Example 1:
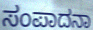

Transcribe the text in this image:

ಸಂಪಾದನಾ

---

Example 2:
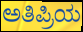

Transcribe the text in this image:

ಅತಿಪ್ರಿಯ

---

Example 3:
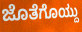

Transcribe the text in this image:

ಜೊತೆಗೊಯ್ದು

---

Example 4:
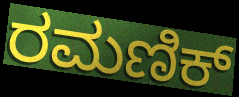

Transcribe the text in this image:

ರಮಣಿಕ್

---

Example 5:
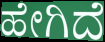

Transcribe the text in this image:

ಹೇಗಿದೆ